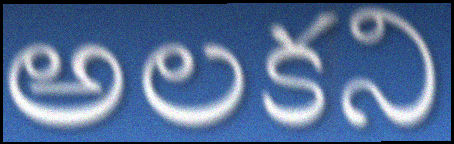
అలకని